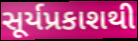
સૂર્યપ્રકાશથી